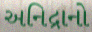
અનિદ્રાનો